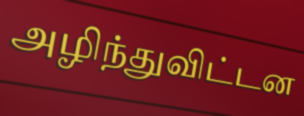
அழிந்துவிட்டன